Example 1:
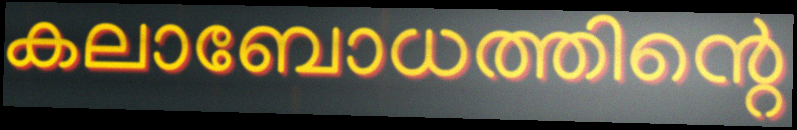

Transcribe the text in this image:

കലാബോധത്തിന്റെ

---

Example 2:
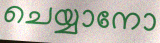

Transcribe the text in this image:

ചെയ്യാനോ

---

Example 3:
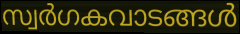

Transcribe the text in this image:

സ്വർഗകവാടങ്ങൾ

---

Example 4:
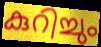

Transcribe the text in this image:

കുറിച്ചും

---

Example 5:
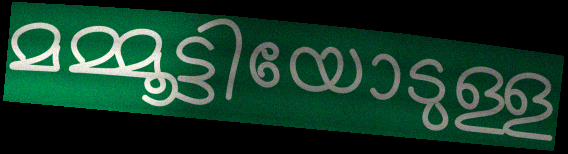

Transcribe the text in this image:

മമ്മൂട്ടിയോടുള്ള